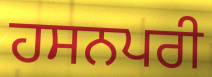
ਹਸਨਪਰੀ